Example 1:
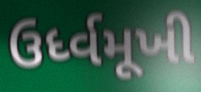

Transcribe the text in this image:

ઉર્ધ્વમૂખી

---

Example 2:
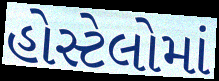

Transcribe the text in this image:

હોસ્ટેલોમાં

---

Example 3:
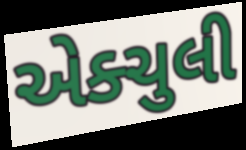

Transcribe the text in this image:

એક્ચુલી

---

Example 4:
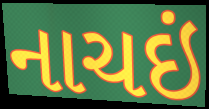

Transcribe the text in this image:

નાચઇં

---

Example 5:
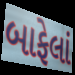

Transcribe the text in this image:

બાફેલાં